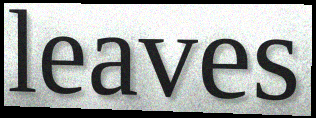
leaves